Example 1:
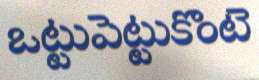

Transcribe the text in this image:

ఒట్టుపెట్టుకొంటె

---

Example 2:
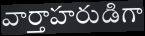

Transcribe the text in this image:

వార్తాహరుడిగా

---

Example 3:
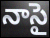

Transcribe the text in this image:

నాసై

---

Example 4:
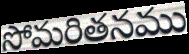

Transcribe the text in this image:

సోమరితనము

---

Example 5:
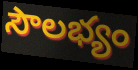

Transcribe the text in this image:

సౌలభ్యం